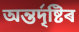
অন্তৰ্দৃষ্টিৰ